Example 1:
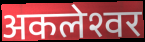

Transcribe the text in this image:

अकलेश्वर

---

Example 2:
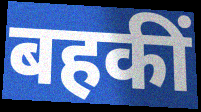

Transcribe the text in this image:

बहकीं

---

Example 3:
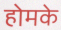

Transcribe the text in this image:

होमके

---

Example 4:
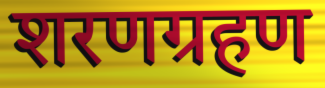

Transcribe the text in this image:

शरणग्रहण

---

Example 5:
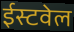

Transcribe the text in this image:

ईस्टवेल